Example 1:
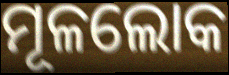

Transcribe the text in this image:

ମୂଳଲୋକ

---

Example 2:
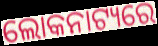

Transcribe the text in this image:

ଲୋକନାଟ୍ୟରେ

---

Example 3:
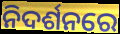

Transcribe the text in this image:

ନିଦର୍ଶନରେ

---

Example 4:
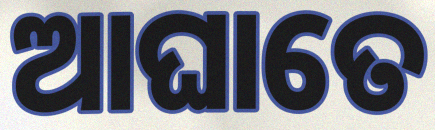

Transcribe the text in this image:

ଆଘାତେ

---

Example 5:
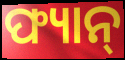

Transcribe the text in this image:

ଫ୍ୟାନ୍